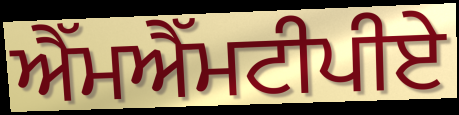
ਐੱਮਐੱਮਟੀਪੀਏ